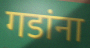
गडांना